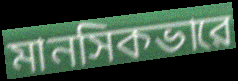
মানসিকভাৱে